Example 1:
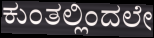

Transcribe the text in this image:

ಕುಂತಲ್ಲಿಂದಲೇ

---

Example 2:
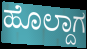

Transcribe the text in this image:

ಹೊಲ್ದಾಗ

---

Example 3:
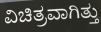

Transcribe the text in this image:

ವಿಚಿತ್ರವಾಗಿತ್ತು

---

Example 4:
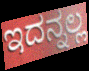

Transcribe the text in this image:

ಇದನ್ನಲ್ಲ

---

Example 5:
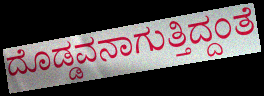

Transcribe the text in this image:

ದೊಡ್ಡವನಾಗುತ್ತಿದ್ದಂತೆ